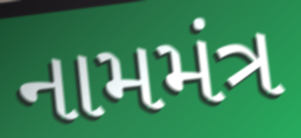
નામમંત્ર